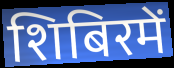
शिबिरमें